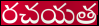
రచయత